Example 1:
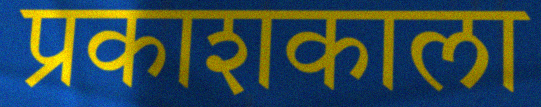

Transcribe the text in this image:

प्रकाशकाला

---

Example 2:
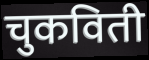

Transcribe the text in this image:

चुकविती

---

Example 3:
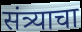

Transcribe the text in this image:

संत्र्याचा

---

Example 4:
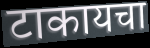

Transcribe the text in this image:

टाकायचा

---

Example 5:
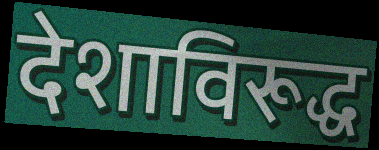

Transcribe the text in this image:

देशाविरूद्ध